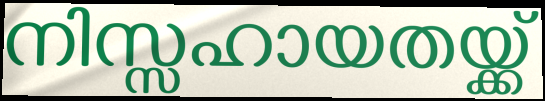
നിസ്സഹായതയ്ക്ക്